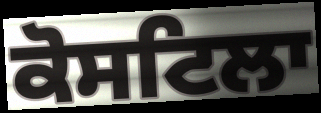
ਕੋਸਟਿਲਾ